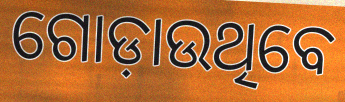
ଗୋଡ଼ାଉଥିବେ